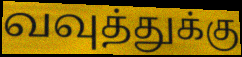
வவுத்துக்கு